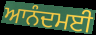
ਆਨੰਦਮਈ